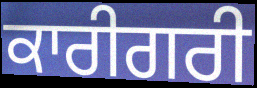
ਕਾਰੀਗਰੀ